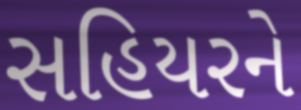
સહિયરને